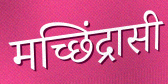
मच्छिंद्रासी